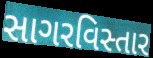
સાગરવિસ્તાર